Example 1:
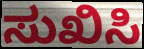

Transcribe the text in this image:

ಸುಖಿಸಿ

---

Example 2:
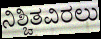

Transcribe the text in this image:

ನಿಶ್ಚಿತವಿರಲು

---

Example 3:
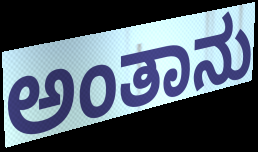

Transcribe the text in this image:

ಅಂತಾನು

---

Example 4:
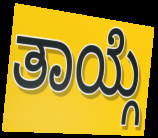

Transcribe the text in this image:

ತಾಯ್ಗೆ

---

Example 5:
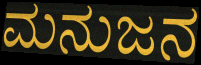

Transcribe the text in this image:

ಮನುಜನ